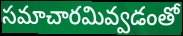
సమాచారమివ్వడంతో